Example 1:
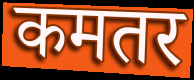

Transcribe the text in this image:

कमतर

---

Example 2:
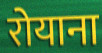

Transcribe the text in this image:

रोयाना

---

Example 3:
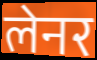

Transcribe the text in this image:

लेनर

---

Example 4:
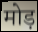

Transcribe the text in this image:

मोड़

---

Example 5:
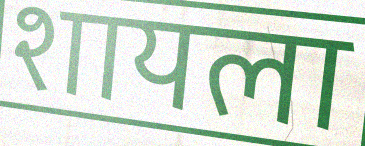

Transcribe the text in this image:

शायला